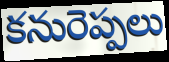
కనురెప్పలు